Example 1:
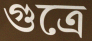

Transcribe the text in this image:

গুত্রে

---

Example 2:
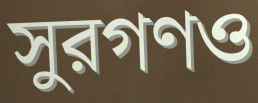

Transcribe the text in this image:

সুরগণও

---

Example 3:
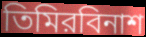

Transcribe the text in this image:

তিমিরবিনাশ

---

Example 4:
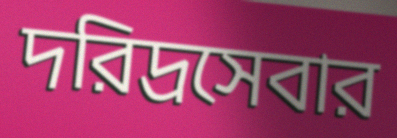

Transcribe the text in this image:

দরিদ্রসেবার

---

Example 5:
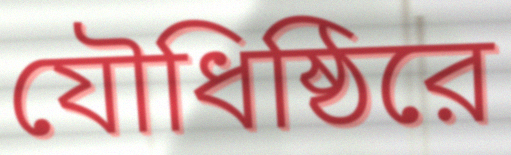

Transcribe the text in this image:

যৌধিষ্ঠিরে